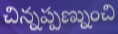
చిన్నప్పణ్నుంచి